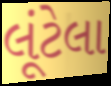
લૂંટેલા